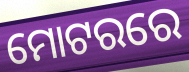
ମୋଟରରେ